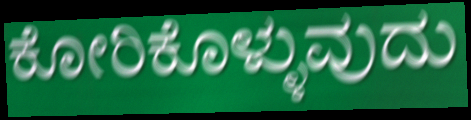
ಕೋರಿಕೊಳ್ಳುವುದು